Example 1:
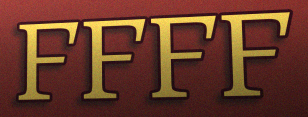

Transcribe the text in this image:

FFFF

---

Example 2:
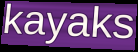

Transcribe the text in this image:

kayaks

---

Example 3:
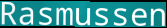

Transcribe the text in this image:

Rasmussen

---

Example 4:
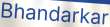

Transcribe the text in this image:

Bhandarkar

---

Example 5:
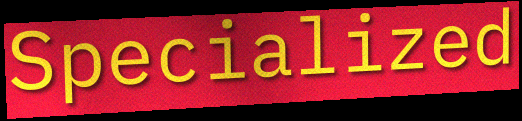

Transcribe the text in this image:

Specialized